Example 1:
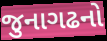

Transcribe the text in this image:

જુનાગઢનો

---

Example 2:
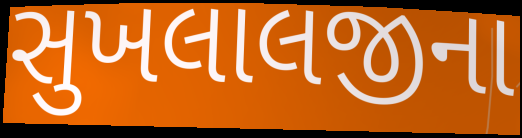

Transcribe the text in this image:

સુખલાલજીના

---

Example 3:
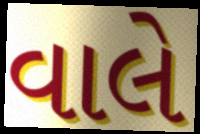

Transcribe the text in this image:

વાલે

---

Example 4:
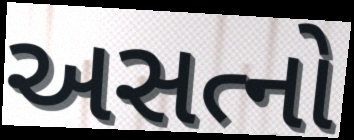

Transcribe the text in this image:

અસત્નો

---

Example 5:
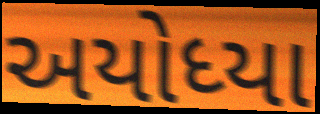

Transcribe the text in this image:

અયોધ્યા